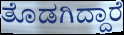
ತೊಡಗಿದ್ದಾರೆ